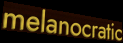
melanocratic